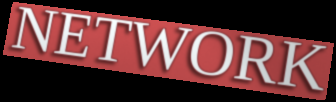
NETWORK